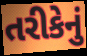
તરીકેનું